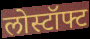
लोस्टॉफ्ट